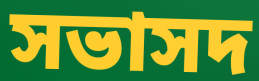
সভাসদ